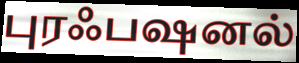
புரஃபஷனல்